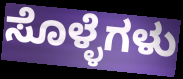
ಸೊಳ್ಳೆಗಳು